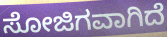
ಸೋಜಿಗವಾಗಿದೆ